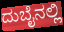
ದುಬೈನಲ್ಲಿ